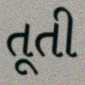
તૂતી